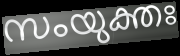
സംയുക്തഃ